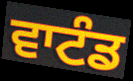
ਵਾਟੰਡ